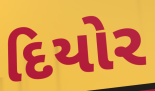
દિયોર